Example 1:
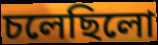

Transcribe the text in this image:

চলেছিলো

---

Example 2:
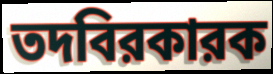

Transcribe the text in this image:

তদবিরকারক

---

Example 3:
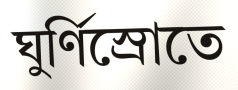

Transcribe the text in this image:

ঘুর্ণিস্রোতে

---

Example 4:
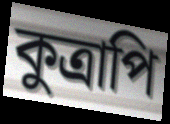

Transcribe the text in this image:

কুত্রাপি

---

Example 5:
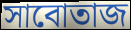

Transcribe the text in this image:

সাবোতাজ